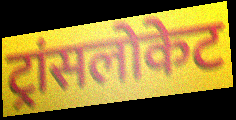
ट्रांसलोकेट